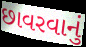
છાવરવાનું